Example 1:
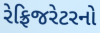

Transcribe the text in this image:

રેફ્રિજરેટરનો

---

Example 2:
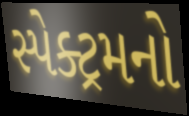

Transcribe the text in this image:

સ્પેક્ટ્રમનો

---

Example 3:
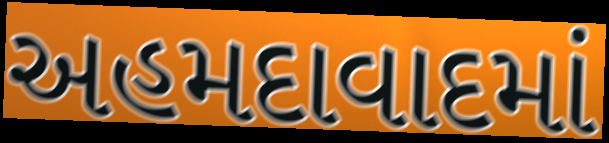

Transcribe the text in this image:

અહમદાવાદમાં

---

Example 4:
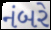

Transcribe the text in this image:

નંબરે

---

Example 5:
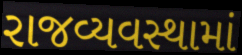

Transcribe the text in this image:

રાજવ્યવસ્થામાં